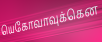
யெகோவாவுக்கென